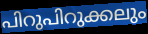
പിറുപിറുക്കലും